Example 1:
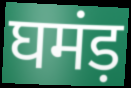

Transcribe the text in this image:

घमंड़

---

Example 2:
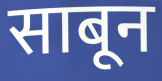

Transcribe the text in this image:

साबून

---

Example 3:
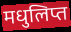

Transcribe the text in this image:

मधुलिप्त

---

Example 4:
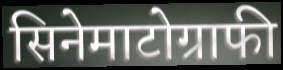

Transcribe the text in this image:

सिनेमाटोग्राफी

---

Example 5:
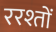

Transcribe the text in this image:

ररश्तों